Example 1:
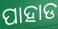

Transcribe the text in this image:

ପାହାଡ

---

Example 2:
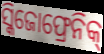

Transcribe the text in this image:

ସ୍କିଜୋଫ୍ରେନିକ୍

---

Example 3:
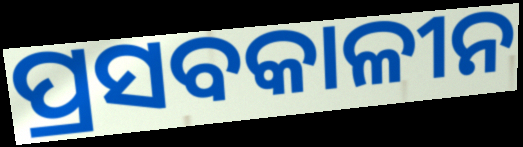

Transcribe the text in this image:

ପ୍ରସବକାଳୀନ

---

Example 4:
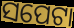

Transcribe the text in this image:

ସପେଟା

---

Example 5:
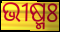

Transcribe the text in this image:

ଭୀଷ୍ମଃ